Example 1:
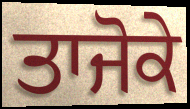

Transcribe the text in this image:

ਤਾਜੋਕੇ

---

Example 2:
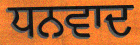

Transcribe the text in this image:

ਧਨਵਾਦ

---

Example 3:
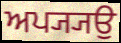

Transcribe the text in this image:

ਅਪ੍ਯ੍ਯਉ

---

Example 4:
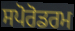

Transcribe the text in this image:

ਸਪੋਰੋਡਰਮ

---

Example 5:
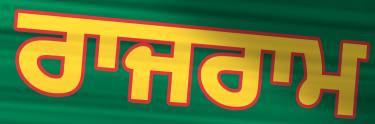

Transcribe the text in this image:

ਰਾਜਰਾਮ